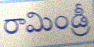
రామిండ్రీ